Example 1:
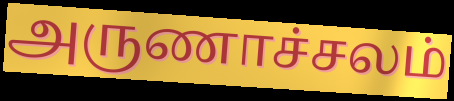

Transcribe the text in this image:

அருணாச்சலம்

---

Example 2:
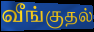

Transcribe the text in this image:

வீங்குதல்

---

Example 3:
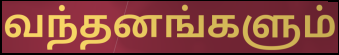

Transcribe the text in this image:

வந்தனங்களும்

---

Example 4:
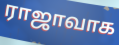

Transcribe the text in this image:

ராஜாவாக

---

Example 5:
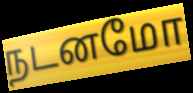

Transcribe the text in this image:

நடனமோ